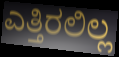
ಎತ್ತಿರಲಿಲ್ಲ